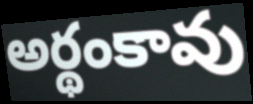
అర్థంకావు